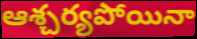
ఆశ్చర్యపోయినా